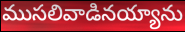
ముసలివాడినయ్యాను